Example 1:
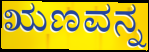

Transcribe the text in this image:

ಋಣವನ್ನ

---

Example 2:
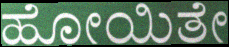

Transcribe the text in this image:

ಹೋಯಿತೇ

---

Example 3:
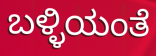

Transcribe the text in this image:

ಬಳ್ಳಿಯಂತೆ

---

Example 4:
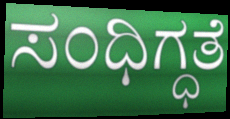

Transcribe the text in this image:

ಸಂಧಿಗ್ಧತೆ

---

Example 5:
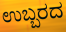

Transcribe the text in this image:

ಉಬ್ಬರದ